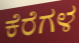
ಕೆರೆಗಳ